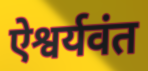
ऐश्वर्यवंत